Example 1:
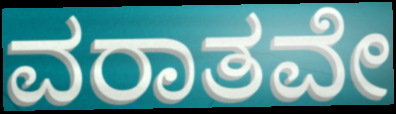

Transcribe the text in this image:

ವರಾತವೇ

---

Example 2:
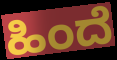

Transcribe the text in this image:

ಹಿಂದೆ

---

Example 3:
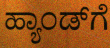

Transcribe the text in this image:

ಹ್ಯಾಂಡ್‌ಗೆ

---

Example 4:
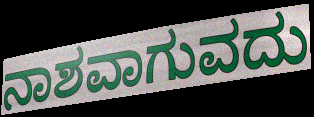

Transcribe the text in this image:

ನಾಶವಾಗುವದು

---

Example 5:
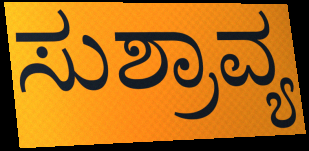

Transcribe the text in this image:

ಸುಶ್ರಾವ್ಯ